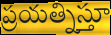
ప్రయత్నిస్తూ